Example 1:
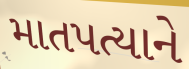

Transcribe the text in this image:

માતપત્યાને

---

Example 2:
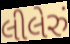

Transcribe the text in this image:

લીલેરું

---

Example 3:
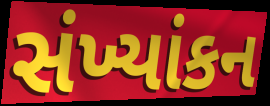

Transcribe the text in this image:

સંખ્યાંકન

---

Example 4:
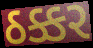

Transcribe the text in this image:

ઠક્કર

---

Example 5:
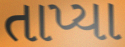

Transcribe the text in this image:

તાપ્યા